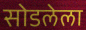
सोडलेला